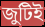
জুটিই